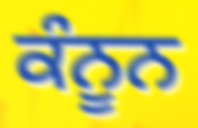
ਕੰਨੂਨ